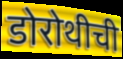
डोरोथीची